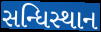
સન્ધિસ્થાન